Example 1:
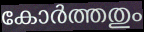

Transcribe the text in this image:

കോർത്തതും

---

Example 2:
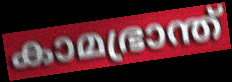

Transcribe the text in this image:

കാമഭ്രാന്ത്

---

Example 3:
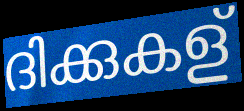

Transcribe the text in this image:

ദിക്കുകള്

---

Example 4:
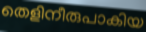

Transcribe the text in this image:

തെളിനീരുപാകിയ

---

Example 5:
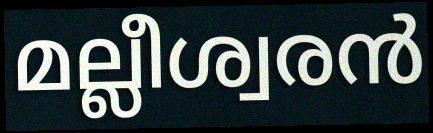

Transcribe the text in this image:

മല്ലീശ്വരൻ